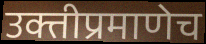
उक्तीप्रमाणेच